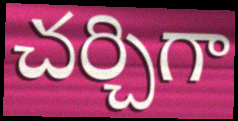
చర్చిగా